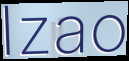
Izao